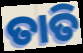
ତାତି